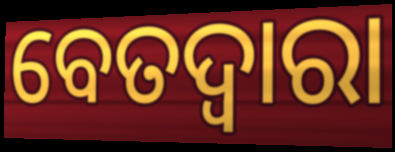
ବେତଦ୍ୱାରା